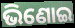
ଭିଣୋଇ